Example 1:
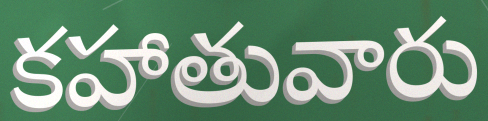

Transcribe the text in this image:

కహాతువారు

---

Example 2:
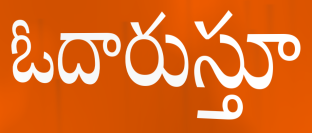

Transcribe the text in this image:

ఓదారుస్తూ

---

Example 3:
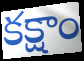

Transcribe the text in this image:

కక్షాం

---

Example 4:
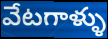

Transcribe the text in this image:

వేటగాళ్ళు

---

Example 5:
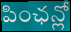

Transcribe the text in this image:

పింఛన్లో